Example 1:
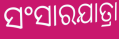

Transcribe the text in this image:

ସଂସାରଯାତ୍ରା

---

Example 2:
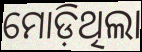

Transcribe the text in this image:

ମୋଡ଼ିଥିଲା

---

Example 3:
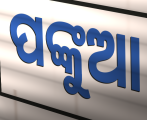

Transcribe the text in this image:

ପଙ୍କୁଆ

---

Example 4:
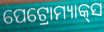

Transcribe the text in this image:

ପେଟ୍ରୋମ୍ୟାକ୍‌ସ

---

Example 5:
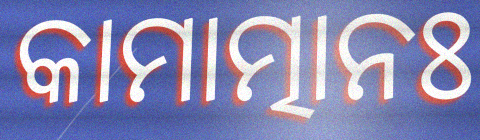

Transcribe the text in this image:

କାମାତ୍ମାନଃ